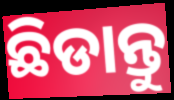
ଛିଡାନ୍ତୁ